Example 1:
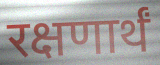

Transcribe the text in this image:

रक्षणार्थं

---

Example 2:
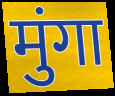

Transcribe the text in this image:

मुंगा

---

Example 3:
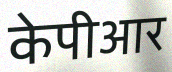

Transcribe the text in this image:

केपीआर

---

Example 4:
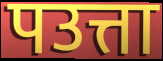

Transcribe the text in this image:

पउत्ता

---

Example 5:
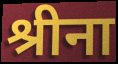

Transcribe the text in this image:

श्रीना